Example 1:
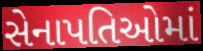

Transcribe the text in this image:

સેનાપતિઓમાં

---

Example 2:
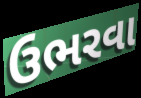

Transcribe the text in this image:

ઉભરવા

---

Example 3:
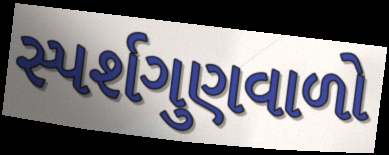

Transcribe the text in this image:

સ્પર્શગુણવાળો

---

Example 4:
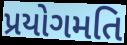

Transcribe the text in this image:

પ્રયોગમતિ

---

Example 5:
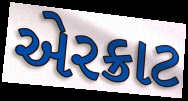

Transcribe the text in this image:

એરક્રાટ